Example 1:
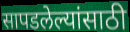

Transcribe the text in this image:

सापडलेल्यांसाठी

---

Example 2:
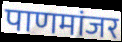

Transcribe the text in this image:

पाणमांजर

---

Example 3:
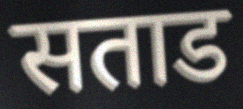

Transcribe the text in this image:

सताड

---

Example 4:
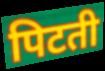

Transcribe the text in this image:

पिटती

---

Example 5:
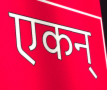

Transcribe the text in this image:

एकन्